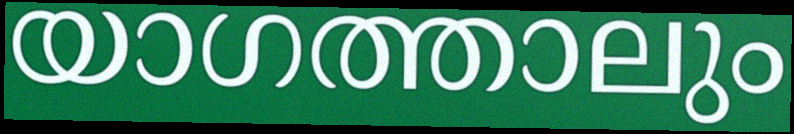
യാഗത്താലും